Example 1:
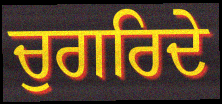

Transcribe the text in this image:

ਚੁਗਰਿਦੇ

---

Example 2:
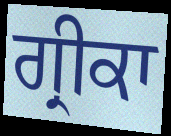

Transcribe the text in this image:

ਗ੍ਰੀਕਾ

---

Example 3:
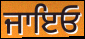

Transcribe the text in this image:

ਜਾਇਓ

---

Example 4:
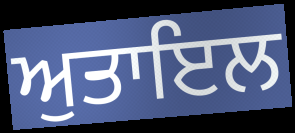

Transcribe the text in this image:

ਅੁਤਾਇਲ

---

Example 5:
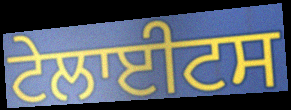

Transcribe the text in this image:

ਟੇਲਾਈਟਸ